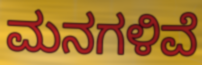
ಮನಗಳಿವೆ